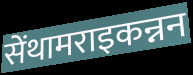
सेंथामराइकन्नन